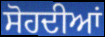
ਸੋਹਦੀਆਂ